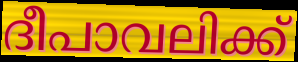
ദീപാവലിക്ക്